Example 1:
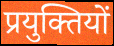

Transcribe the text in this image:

प्रयुक्तियों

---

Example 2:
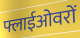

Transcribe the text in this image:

फ्लाईओवरों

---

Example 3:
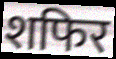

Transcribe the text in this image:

शफिर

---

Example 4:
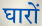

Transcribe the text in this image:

घारों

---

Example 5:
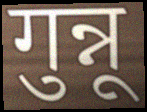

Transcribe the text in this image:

गुन्नू